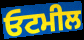
ਓਟਮੀਲ